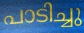
പാടിച്ചു